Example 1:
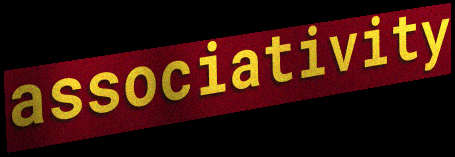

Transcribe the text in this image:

associativity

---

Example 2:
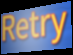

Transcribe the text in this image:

Retry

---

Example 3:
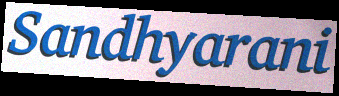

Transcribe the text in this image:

Sandhyarani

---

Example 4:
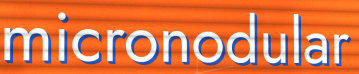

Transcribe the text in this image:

micronodular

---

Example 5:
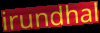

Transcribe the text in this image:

irundhal